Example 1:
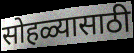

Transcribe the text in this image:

सोहळ्यासाठी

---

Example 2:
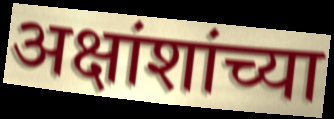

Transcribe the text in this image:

अक्षांशांच्या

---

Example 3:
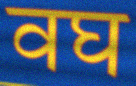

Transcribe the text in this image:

वघ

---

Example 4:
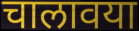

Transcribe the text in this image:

चालावया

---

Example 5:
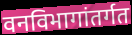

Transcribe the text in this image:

वनविभागांतर्गत